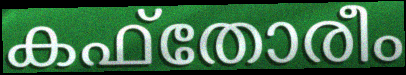
കഫ്തോരീം